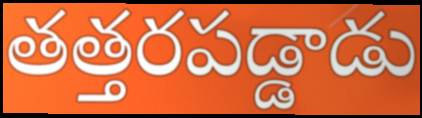
తత్తరపడ్డాడు